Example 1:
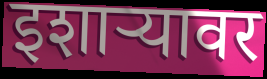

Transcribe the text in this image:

इशाऱ्यावर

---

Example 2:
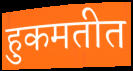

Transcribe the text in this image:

हुकमतीत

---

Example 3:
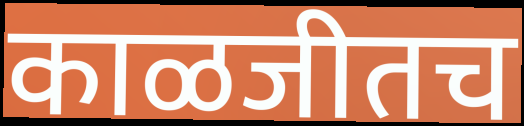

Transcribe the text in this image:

काळजीतच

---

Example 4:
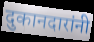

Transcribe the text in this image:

दुकानदारांनी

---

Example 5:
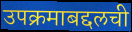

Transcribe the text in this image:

उपक्रमाबद्दलची